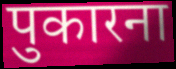
पुकारना